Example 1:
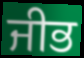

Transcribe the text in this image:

ਜੀਭ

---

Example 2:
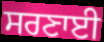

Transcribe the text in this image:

ਸਰਣਾਈ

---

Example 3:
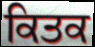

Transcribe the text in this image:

ਕਿਤਕ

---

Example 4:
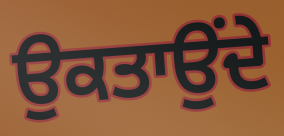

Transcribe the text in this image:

ਉਕਤਾਉਂਦੇ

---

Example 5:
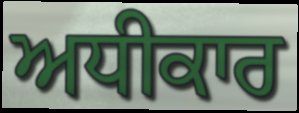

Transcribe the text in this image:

ਅਧੀਕਾਰ